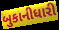
બુકાનીધારી